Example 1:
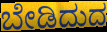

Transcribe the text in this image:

ಬೇಡಿದುದ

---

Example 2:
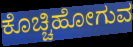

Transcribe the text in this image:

ಕೊಚ್ಚಿಹೋಗುವ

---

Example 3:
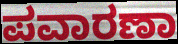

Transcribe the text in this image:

ಪವಾರಣಾ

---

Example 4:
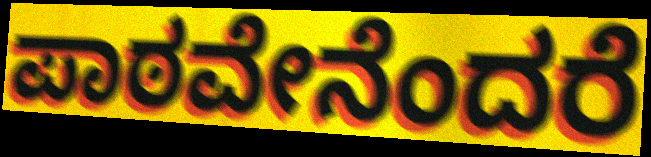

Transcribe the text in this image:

ಪಾಠವೇನೆಂದರೆ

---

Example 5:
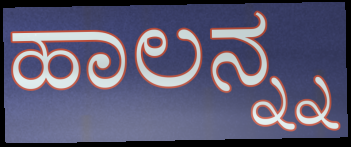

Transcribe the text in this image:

ಹಾಲನ್ನ್ನ